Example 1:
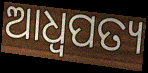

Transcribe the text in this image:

ଆଧ୍ଵପତ୍ୟ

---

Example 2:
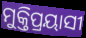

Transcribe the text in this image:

ମୁକ୍ତିପ୍ରୟାସୀ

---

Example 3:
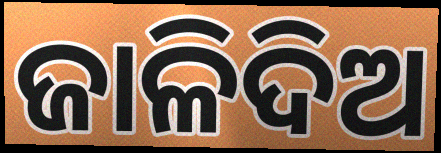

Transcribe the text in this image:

ଜାଳିଦିଅ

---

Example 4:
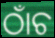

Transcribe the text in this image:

ଠାଁଚ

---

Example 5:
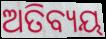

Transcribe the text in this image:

ଅତିବ୍ୟୟ